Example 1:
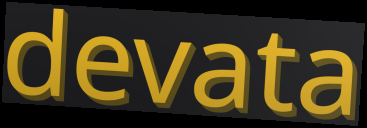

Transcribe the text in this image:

devata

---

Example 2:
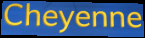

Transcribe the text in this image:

Cheyenne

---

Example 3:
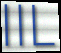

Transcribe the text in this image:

IIL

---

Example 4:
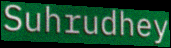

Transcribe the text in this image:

Suhrudhey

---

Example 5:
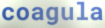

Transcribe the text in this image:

coagula